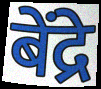
बेंद्रे